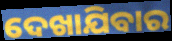
ଦେଖାଯିବାର